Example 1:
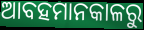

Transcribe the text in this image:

ଆବହମାନକାଳରୁ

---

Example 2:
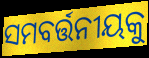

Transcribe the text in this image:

ସମବର୍ତ୍ତନୀୟକୁ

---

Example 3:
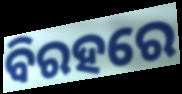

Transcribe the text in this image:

ବିରହରେ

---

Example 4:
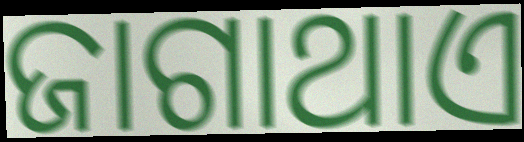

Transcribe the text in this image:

ଜାଗାଥାଏ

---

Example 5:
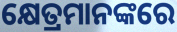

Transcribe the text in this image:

କ୍ଷେତ୍ରମାନଙ୍କରେ